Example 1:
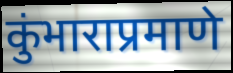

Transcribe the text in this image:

कुंभाराप्रमाणे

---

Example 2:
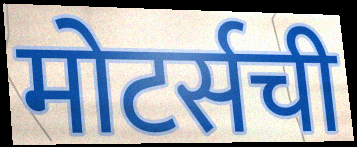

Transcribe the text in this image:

मोटर्सची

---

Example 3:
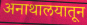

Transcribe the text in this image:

अनाथालयातून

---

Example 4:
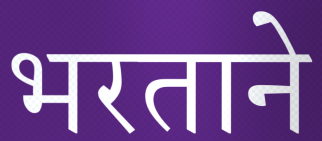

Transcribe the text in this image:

भरताने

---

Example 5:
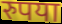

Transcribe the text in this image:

रुपया